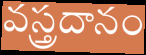
వస్త్రదానం